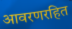
आवरणरहित